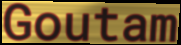
Goutam